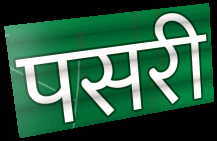
पसरी